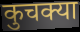
कुचक्या